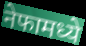
नेफामध्ये